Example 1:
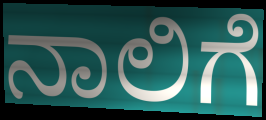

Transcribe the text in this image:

ನಾಲಿಗೆ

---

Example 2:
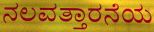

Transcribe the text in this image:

ನಲವತ್ತಾರನೆಯ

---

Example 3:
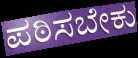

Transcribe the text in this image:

ಪಠಿಸಬೇಕು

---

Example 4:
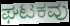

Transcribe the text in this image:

ಘಟಕವು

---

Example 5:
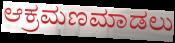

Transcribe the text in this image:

ಆಕ್ರಮಣಮಾಡಲು